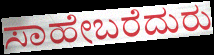
ಸಾಹೇಬರೆದುರು